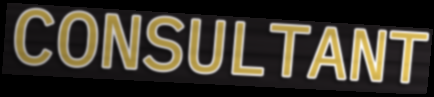
CONSULTANT